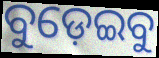
ବୁଡ଼େଇବୁ